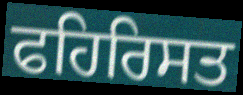
ਫਹਿਰਿਸਤ